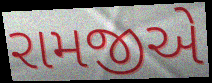
રામજીએ